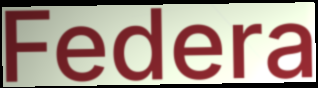
Federa